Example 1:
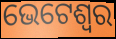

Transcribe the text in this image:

ଭେଟେଶ୍ୱର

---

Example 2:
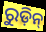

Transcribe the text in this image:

ରୁଡ଼ିନ୍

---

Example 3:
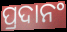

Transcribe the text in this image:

ପ୍ରଦାନଂ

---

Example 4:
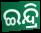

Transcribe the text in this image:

ଇନ୍ଦ୍ରି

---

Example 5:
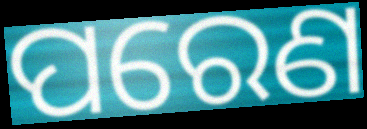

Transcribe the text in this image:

ପରେଣ